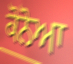
ਕੋਨੋਆ